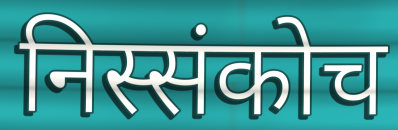
निस्संकोच